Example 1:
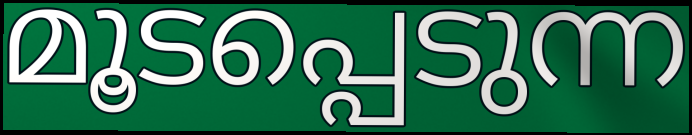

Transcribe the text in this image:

മൂടപ്പെടുന്ന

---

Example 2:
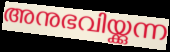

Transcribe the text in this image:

അനുഭവിയ്ക്കുന്ന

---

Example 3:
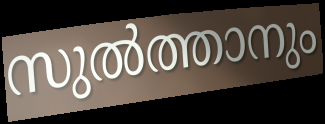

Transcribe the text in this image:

സുൽത്താനും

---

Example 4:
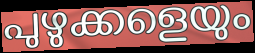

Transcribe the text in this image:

പുഴുക്കളെയും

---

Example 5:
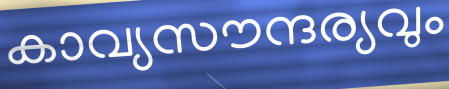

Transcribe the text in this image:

കാവ്യസൗന്ദര്യവും